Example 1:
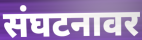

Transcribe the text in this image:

संघटनावर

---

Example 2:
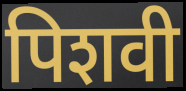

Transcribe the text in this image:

पिशवी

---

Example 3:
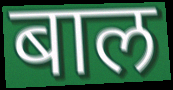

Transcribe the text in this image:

बाल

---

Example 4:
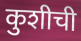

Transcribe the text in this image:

कुशीची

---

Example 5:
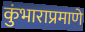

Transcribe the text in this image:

कुंभाराप्रमाणे